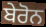
ਬੇਰੋਨ